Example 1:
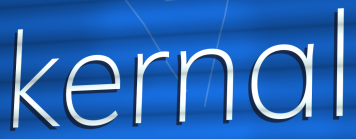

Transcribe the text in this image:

kernal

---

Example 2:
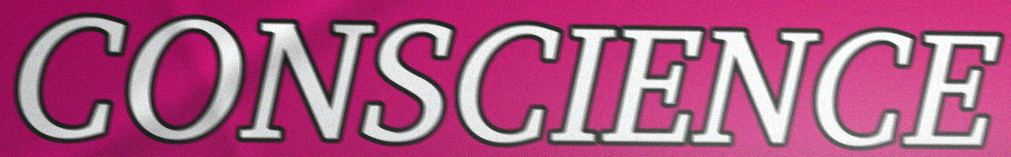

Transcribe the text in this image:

CONSCIENCE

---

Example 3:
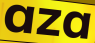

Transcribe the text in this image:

aza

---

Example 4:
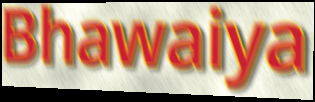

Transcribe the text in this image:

Bhawaiya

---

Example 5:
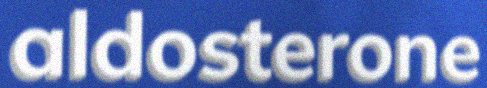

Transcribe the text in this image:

aldosterone